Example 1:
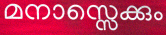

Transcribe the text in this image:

മനാസ്സെക്കും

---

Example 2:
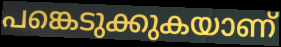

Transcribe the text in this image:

പങ്കെടുക്കുകയാണ്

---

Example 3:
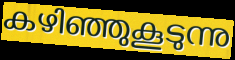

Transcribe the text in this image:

കഴിഞ്ഞുകൂടുന്നു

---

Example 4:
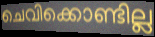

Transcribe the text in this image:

ചെവിക്കൊണ്ടില്ല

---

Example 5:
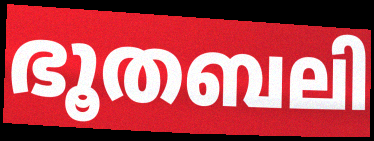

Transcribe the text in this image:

ഭൂതബലി